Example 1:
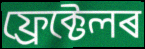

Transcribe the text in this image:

ফ্ৰেক্টেলৰ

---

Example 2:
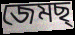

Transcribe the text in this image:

জেমছ্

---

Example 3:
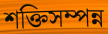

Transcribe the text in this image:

শক্তিসম্পন্ন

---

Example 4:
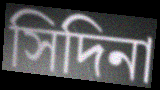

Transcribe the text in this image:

সিদিনা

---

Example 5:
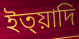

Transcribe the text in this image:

ইত্য়াদি